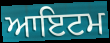
ਆਇਟਮ